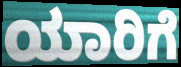
ಯಾರಿಗೆ